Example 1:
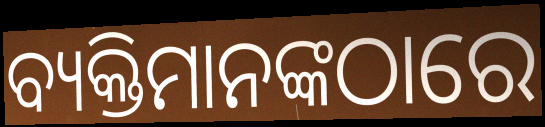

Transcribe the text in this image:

ବ୍ୟକ୍ତିମାନଙ୍କଠାରେ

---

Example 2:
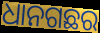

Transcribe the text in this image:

ଧାନଗଛର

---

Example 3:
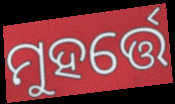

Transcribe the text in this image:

ମୁହର୍ତ୍ତେ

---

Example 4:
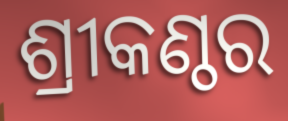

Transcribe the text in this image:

ଶ୍ରୀକଣ୍ଠର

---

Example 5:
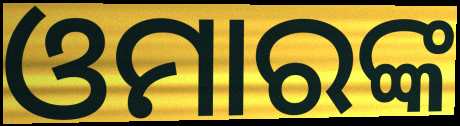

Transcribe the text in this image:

ଓମାରଙ୍କ